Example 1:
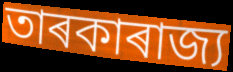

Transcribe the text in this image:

তাৰকাৰাজ্য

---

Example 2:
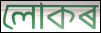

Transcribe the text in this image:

লোকৰ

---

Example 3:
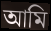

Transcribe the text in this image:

আমি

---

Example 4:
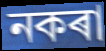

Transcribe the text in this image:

নকৰা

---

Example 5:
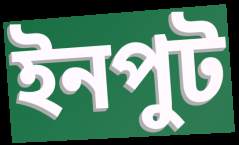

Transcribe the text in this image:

ইনপুট